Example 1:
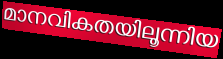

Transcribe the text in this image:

മാനവികതയിലൂന്നിയ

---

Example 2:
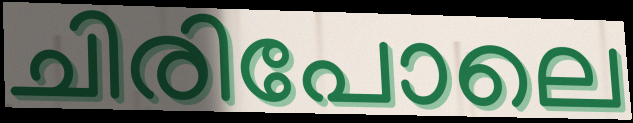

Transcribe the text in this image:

ചിരിപോലെ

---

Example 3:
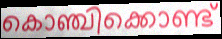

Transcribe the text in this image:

കൊഞ്ചിക്കൊണ്ട്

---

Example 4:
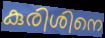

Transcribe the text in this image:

കുരിശിനെ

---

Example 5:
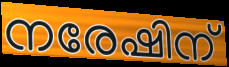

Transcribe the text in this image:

നരേഷിന്